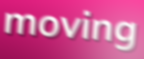
moving